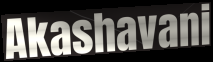
Akashavani